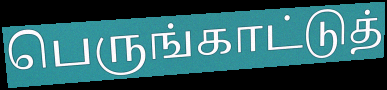
பெருங்காட்டுத்